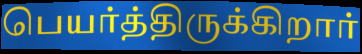
பெயர்த்திருக்கிறார்